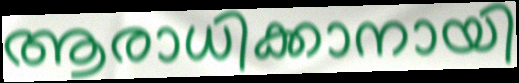
ആരാധിക്കാനായി